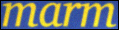
marm